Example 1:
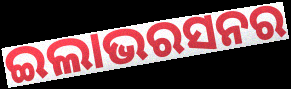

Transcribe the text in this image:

ଇଲାଭରସନର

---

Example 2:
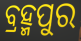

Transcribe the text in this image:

ବ୍ରହ୍ମପୁର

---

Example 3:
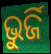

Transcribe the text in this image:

ଭୁର୍ଜି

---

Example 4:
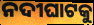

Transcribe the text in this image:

ନଦୀଘାଟକୁ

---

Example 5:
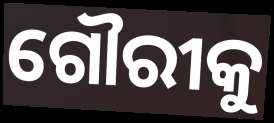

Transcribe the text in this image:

ଗୌରୀକୁ